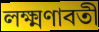
লক্ষ্মণাবতী